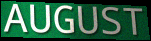
AUGUST